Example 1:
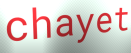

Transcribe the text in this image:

chayet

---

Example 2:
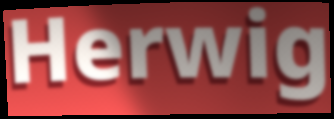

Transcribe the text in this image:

Herwig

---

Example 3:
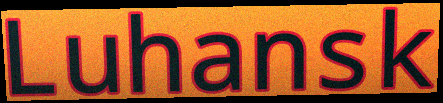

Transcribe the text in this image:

Luhansk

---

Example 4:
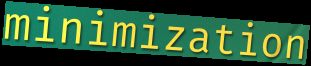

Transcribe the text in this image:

minimization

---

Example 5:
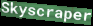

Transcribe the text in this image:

Skyscraper